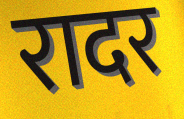
रादर